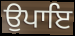
ਉਪਾਇ